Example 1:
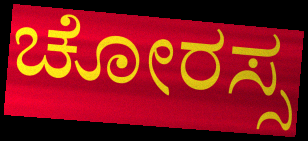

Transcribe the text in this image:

ಚೋರಸ್ಸ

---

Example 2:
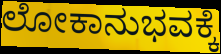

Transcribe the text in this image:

ಲೋಕಾನುಭವಕ್ಕೆ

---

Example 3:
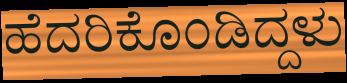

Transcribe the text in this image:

ಹೆದರಿಕೊಂಡಿದ್ದಳು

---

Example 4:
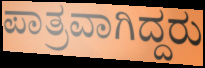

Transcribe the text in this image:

ಪಾತ್ರವಾಗಿದ್ದರು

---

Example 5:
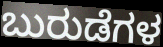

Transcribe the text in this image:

ಬುರುಡೆಗಳ